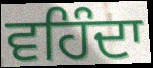
ਵਹਿੰਦਾ